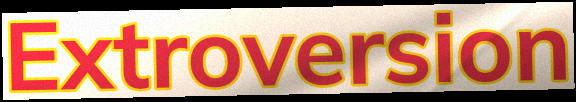
Extroversion